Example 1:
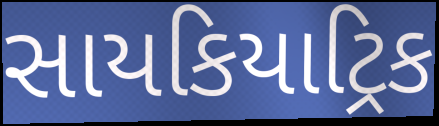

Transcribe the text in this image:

સાયકિયાટ્રિક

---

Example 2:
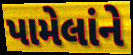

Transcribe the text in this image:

પામેલાંને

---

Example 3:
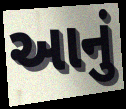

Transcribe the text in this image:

આનું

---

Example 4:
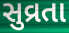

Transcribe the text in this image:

સુવ્રતા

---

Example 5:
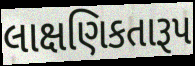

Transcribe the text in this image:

લાક્ષણિકતારૂપ